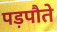
पड़पौते